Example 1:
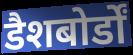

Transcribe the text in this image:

डैशबोर्डों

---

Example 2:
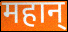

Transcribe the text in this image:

महान्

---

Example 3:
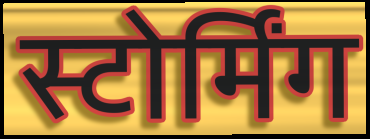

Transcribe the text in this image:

स्टोर्मिंग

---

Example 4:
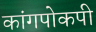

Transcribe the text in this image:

कांगपोकपी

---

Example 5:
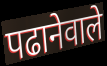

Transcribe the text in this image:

पढानेवाले